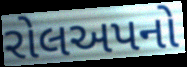
રોલઅપનો